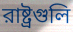
রাষ্ট্রগুলি